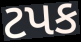
ટપક